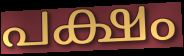
പക്ഷം